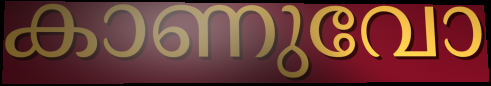
കാണുവോ